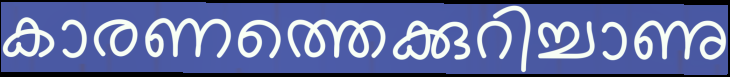
കാരണത്തെക്കുറിച്ചാണു